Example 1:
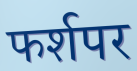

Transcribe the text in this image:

फर्शपर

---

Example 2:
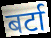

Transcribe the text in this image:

बर्टा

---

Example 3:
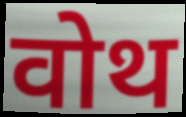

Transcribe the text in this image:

वोथ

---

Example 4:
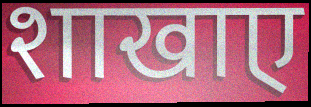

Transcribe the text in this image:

शाखाए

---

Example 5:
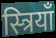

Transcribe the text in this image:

स्‍त्रियाँ